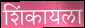
शिंकायला